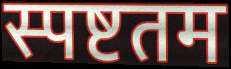
स्पष्टतम